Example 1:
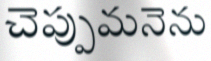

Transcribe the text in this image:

చెప్పుమనెను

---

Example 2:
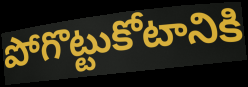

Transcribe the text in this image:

పోగొట్టుకోటానికి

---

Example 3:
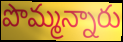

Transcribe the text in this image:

పొమ్మన్నారు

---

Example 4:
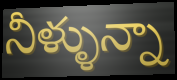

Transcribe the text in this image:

నీళ్ళున్నా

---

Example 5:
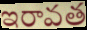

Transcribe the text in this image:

ఇరావత